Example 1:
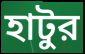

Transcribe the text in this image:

হাটুর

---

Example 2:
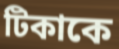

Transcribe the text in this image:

টিকাকে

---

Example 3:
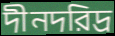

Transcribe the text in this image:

দীনদরিদ্র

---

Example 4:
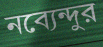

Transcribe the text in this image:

নব্যেন্দুর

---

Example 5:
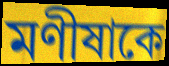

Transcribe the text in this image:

মণীষাকে